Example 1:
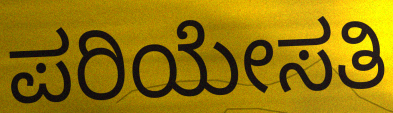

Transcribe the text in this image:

ಪರಿಯೇಸತಿ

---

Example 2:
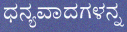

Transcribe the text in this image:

ಧನ್ಯವಾದಗಳನ್ನ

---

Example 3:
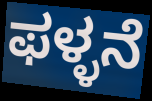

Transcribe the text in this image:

ಫಳ್ಳನೆ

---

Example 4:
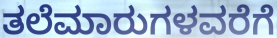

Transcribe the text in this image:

ತಲೆಮಾರುಗಳವರೆಗೆ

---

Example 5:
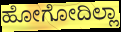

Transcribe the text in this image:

ಹೋಗೋದಿಲ್ಲಾ